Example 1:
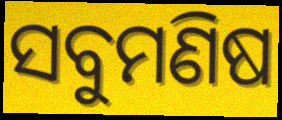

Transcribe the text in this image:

ସବୁମଣିଷ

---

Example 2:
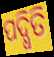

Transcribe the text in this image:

ପଦ୍ଧିତି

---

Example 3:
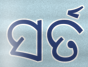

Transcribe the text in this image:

ସର୍ତ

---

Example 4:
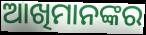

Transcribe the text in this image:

ଆଖିମାନଙ୍କର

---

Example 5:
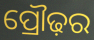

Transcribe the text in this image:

ପ୍ରୌଢ଼ର